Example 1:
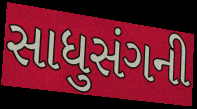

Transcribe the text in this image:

સાધુસંગની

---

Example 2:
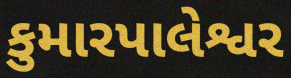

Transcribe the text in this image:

કુમારપાલેશ્વર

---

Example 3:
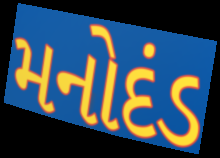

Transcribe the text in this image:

મનોદંડ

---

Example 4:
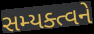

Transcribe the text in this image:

સમ્યક્ત્વને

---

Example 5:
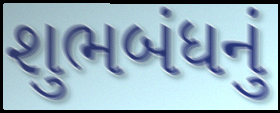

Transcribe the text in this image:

શુભબંધનું